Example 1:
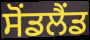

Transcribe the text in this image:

ਸੋਂਡਲੈਂਡ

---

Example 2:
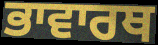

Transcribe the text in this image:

ਭਾਵਾਰਥ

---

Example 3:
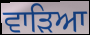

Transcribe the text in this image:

ਵਾੜਿਆ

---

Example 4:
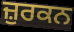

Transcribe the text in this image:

ਜ਼ੁਰਕਨ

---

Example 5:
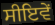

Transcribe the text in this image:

ਸੀਇਵੇਂ